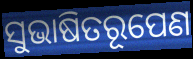
ସୁଭାଷିତରୂପେଣ